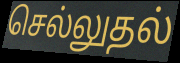
செல்லுதல்